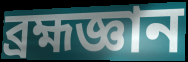
ব্রহ্মজ্ঞান